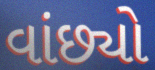
વાંછ્યો